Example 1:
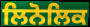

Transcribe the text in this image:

ਲਿਨੋਲਿਕ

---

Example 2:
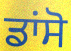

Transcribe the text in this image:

ਡਾਂਸੋ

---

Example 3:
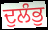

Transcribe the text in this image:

ਦੁਲੰਭੁ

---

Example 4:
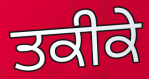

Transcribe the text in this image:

ਤਕੀਕੇ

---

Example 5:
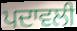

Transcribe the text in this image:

ਪਦਾਵਲੀ